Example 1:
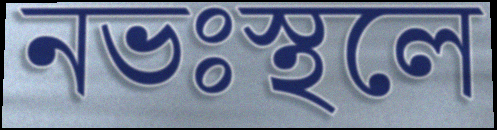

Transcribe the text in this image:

নভঃস্থলে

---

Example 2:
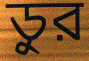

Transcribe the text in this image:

ডুর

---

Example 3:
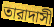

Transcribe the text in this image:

তারাদাসী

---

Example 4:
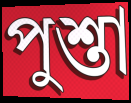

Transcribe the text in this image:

পুশ্তা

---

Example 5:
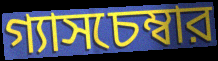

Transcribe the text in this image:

গ্যাসচেম্বার